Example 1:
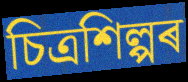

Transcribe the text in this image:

চিত্ৰশিল্পৰ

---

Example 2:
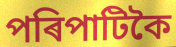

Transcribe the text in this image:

পৰিপাটিকৈ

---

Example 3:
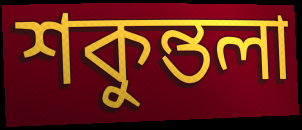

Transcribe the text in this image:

শকুন্তলা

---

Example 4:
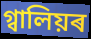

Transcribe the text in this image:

গ্বালিয়ৰ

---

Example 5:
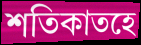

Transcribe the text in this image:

শতিকাতহে